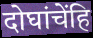
दोघांचेंहि